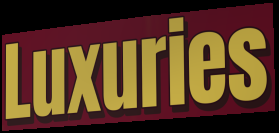
Luxuries